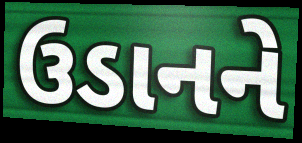
ઉડાનને